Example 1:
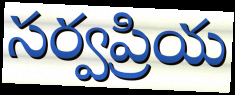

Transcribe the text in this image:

సర్వప్రియ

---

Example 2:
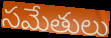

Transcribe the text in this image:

సమేతులు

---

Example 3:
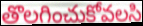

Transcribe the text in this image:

తొలగించుకోవలసి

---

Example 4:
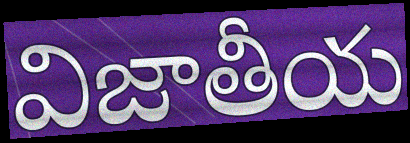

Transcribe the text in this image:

విజాతీయ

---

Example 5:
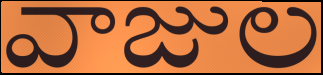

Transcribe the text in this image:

వాజుల